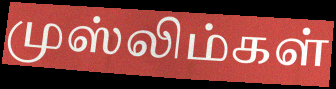
முஸ்லிம்கள்